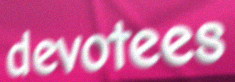
devotees